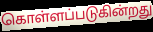
கொள்ளப்படுகின்றது